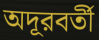
অদূরবর্তী